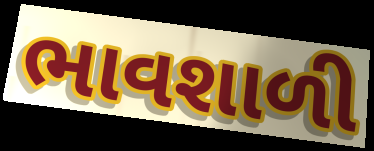
ભાવશાળી